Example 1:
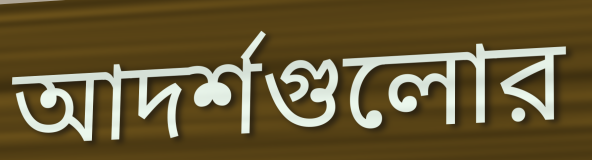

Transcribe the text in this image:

আদর্শগুলোর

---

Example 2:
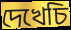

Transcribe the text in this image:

দেখেচি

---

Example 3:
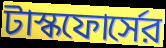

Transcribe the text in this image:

টাস্কফোর্সের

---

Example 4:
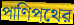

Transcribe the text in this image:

পাণিপথের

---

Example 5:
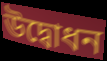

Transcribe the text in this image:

উদ্বোধন